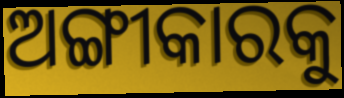
ଅଙ୍ଗୀକାରକୁ